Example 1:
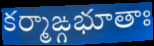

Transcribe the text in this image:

కర్మాఙ్గభూతాః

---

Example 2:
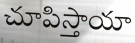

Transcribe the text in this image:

చూపిస్తాయా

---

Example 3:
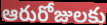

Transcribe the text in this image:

ఆరురోజులకు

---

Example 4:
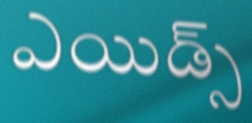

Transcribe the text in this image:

ఎయిడ్స్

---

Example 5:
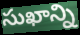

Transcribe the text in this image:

సుఖాన్ని